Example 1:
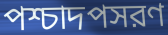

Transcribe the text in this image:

পশ্চাদপসরণ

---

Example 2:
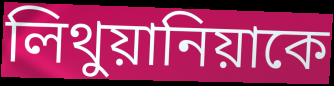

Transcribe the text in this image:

লিথুয়ানিয়াকে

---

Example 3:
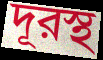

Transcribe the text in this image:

দূরস্থ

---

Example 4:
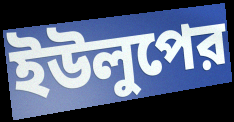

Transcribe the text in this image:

ইউলুপের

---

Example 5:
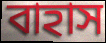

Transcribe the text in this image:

বাহাস